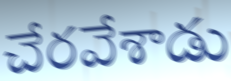
చేరవేశాడు